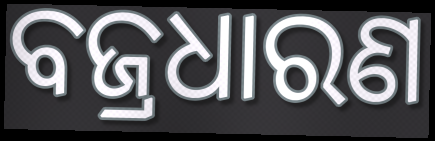
ବଜ୍ରଧାରଣ